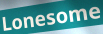
Lonesome